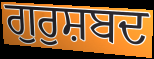
ਗੁਰੁਸ਼ਬਦ